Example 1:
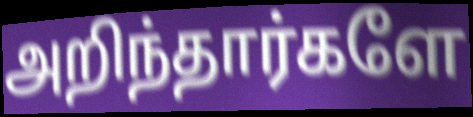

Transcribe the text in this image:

அறிந்தார்களே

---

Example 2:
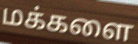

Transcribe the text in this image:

மக்களை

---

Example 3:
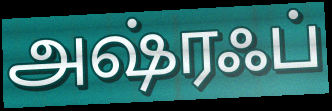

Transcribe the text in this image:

அஷ்ரஃப்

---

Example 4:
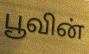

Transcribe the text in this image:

பூவின்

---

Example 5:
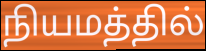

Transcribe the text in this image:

நியமத்தில்